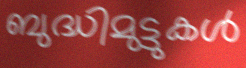
ബുദ്ധിമുട്ടുകൾ